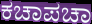
ಕಚಾಪಚಾ